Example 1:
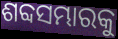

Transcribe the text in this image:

ଶବ୍ଦସମ୍ଭାରକୁ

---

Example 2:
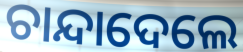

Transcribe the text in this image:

ଚାନ୍ଦାଦେଲେ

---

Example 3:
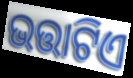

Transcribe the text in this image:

ଭତ୍ତାଟିଏ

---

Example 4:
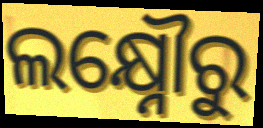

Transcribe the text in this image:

ଲକ୍ଷ୍ନୌରୁ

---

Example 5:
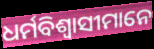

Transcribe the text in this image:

ଧର୍ମବିଶ୍ଵାସୀମାନେ